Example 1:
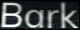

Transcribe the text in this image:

Bark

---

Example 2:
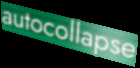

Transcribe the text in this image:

autocollapse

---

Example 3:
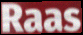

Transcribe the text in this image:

Raas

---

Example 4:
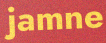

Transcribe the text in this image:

jamne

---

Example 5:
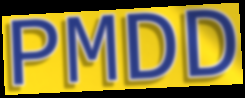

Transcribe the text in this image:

PMDD